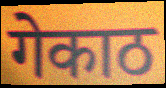
गेकाठ